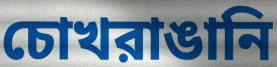
চোখরাঙানি